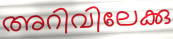
അറിവിലേക്കു